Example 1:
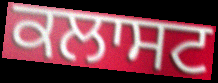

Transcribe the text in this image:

ਕਲਾਸਟ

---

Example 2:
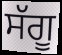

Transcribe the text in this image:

ਸੱਗੂ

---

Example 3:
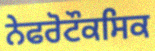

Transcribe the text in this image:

ਨੇਫਰੋਟੌਕਸਿਕ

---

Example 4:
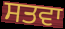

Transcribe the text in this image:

ਸਤਵਾ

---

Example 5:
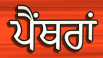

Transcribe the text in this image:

ਪੈਂਥਰਾਂ